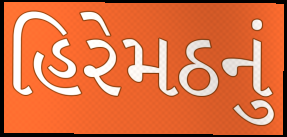
હિરેમઠનું